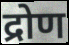
द्रोण